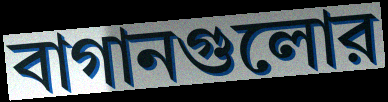
বাগানগুলোর